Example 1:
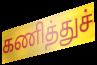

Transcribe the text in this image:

கணித்துச்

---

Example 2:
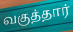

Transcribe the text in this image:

வகுத்தார்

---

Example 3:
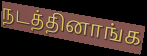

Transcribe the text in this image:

நடத்தினாங்க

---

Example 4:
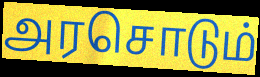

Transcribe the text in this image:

அரசொடும்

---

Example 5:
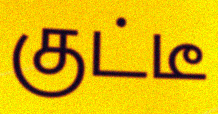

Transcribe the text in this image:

குட்டீ